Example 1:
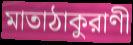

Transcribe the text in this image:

মাতাঠাকুরাণী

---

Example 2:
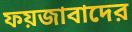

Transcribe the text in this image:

ফয়জাবাদের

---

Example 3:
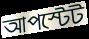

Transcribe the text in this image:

আপস্টেট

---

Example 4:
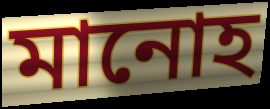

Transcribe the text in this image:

মানোহ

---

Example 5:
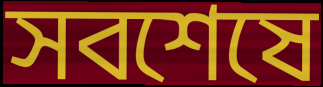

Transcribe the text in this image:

সবশেষে